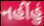
નહીંહું